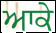
ਆਕੇ